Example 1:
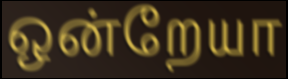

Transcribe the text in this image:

ஒன்றேயா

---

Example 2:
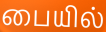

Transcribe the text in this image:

பையில்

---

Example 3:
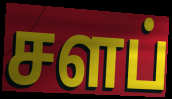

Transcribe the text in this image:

சளப்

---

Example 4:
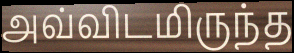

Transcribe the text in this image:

அவ்விடமிருந்த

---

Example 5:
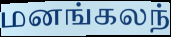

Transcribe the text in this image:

மனங்கலந்